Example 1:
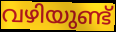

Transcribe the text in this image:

വഴിയുണ്ട്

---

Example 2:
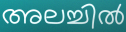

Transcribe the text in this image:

അലച്ചിൽ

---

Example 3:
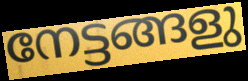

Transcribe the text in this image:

നേട്ടങ്ങളു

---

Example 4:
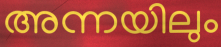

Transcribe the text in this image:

അന്നയിലും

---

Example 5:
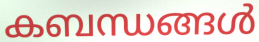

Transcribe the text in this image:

കബന്ധങ്ങൾ